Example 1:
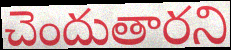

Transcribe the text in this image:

చెందుతారని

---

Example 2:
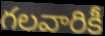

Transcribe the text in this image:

గలవారికీ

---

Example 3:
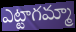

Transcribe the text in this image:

ఎట్టాగమ్మా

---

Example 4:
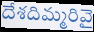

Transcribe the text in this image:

దేశదిమ్మరివై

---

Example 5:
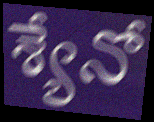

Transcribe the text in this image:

శ్యేనో